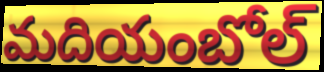
మదియంబోల్